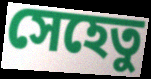
সেহেতু